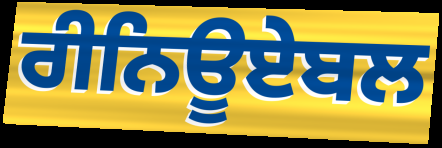
ਰੀਨਿਊਏਬਲ